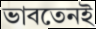
ভাবতেনই